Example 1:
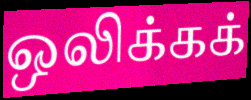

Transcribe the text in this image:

ஒலிக்கக்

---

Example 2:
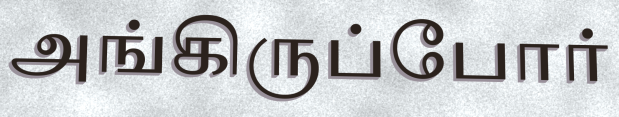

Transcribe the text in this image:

அங்கிருப்போர்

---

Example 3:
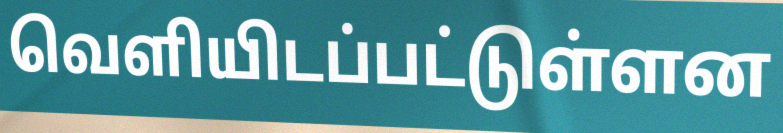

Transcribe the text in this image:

வெளியிடப்பட்டுள்ளன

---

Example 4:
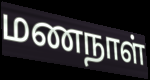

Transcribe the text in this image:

மணநாள்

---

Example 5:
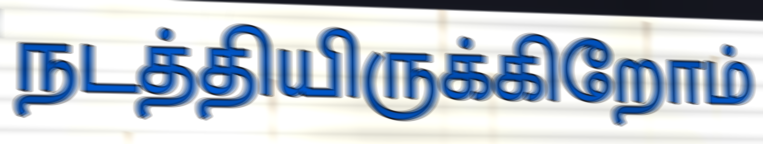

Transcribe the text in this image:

நடத்தியிருக்கிறோம்